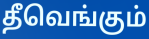
தீவெங்கும்